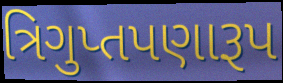
ત્રિગુપ્તપણારૂપ